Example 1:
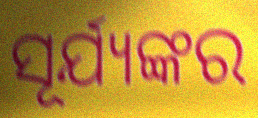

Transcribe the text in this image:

ସୂର୍ଯ୍ୟଙ୍କର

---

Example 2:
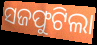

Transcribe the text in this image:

ସଜଫୁଟିଲା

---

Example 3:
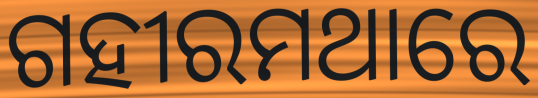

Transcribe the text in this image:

ଗହୀରମଥାରେ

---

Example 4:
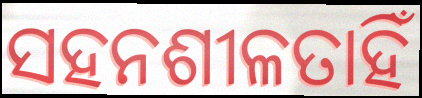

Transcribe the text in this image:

ସହନଶୀଳତାହିଁ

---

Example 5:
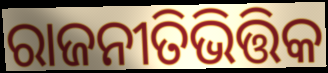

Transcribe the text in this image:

ରାଜନୀତିଭିତ୍ତିକ